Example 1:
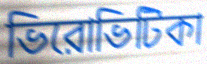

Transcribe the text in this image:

ভিরোভিটিকা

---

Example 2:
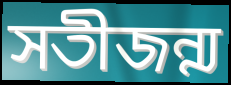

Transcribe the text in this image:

সতীজন্ম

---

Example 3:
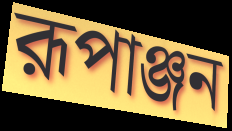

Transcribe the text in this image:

রূপাঞ্জন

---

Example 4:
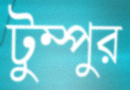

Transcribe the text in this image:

টুম্পুর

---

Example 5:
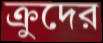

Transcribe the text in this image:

ক্রুদের